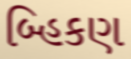
બ્હિકણ